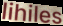
lihiles